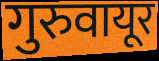
गुरुवायूर